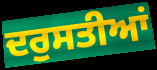
ਦਰੁਸਤੀਆਂ